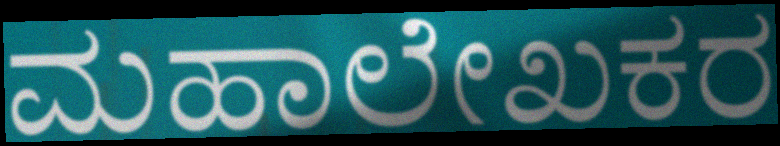
ಮಹಾಲೇಖಕರ